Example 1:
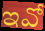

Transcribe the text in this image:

ఇవో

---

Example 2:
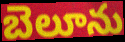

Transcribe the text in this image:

బెలూను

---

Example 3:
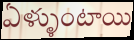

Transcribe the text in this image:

ఏళ్ళుంటాయి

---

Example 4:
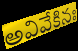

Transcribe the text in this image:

అవివేకినః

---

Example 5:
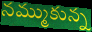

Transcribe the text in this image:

నమ్ముకున్న